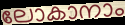
ലോകാനാം